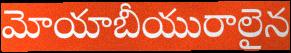
మోయాబీయురాలైన